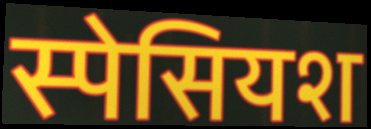
स्पेसियश